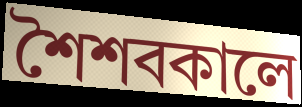
শৈশবকালে